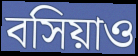
বসিয়াও